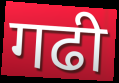
गढी